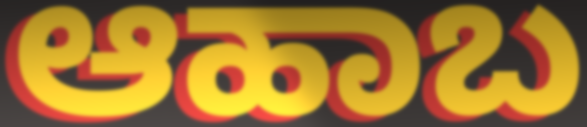
ಆಹಾಬ